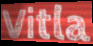
Vitla